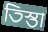
তিস্তা